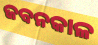
ଜବନକାଳ